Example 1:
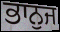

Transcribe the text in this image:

ਭਾਨੁਜ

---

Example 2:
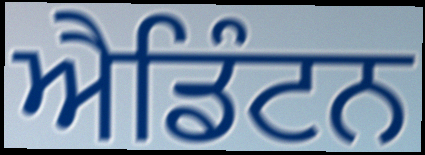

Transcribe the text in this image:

ਐਡਿੰਟਨ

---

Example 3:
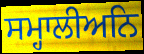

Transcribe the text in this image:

ਸਮ੍ਹਾਲੀਅਨਿ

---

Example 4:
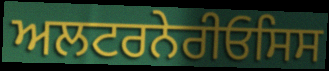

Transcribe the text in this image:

ਅਲਟਰਨੇਰੀਓਸਿਸ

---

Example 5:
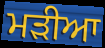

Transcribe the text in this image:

ਮਡ਼ੀਆ